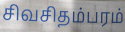
சிவசிதம்பரம்